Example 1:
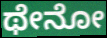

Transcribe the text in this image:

ಥೇನೋ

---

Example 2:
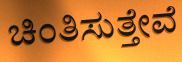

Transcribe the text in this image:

ಚಿಂತಿಸುತ್ತೇವೆ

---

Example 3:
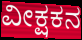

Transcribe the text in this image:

ವೀಕ್ಷಕನ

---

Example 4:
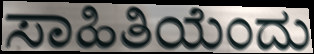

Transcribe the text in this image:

ಸಾಹಿತಿಯೆಂದು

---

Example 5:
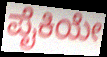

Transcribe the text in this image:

ಪೈಕಿಯೇ